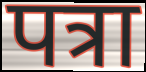
पत्रा